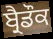
ਬ੍ਰੈਡੌਕ